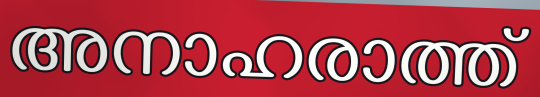
അനാഹരാത്ത്